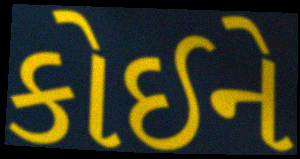
કોઈને